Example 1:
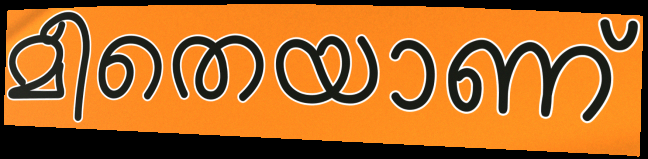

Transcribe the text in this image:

മീതെയാണ്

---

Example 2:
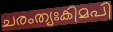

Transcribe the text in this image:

ചരംത്യഃകിമപി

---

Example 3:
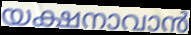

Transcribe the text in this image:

യക്ഷനാവാൻ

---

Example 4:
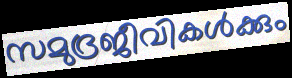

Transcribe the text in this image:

സമുദ്രജീവികൾക്കും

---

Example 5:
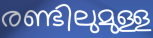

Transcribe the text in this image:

രണ്ടിലുമുള്ള